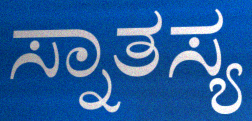
ಸ್ನಾತಸ್ಯ